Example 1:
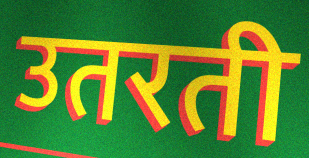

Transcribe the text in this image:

उतरती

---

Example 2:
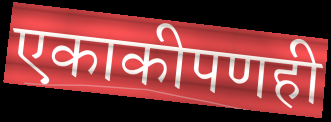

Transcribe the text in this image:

एकाकीपणही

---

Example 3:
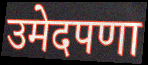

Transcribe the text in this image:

उमेदपणा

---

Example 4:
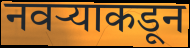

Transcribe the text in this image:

नवऱ्याकडून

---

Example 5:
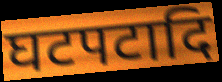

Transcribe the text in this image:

घटपटादि